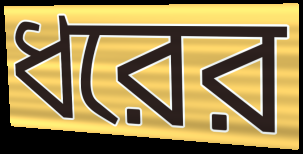
ধরের